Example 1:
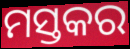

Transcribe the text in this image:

ମସ୍ତକର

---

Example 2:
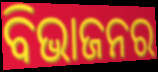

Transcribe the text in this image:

ବିଭାଜନର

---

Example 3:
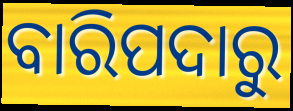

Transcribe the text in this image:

ବାରିପଦାରୁ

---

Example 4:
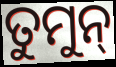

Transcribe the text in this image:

ତୁମୁନ୍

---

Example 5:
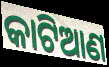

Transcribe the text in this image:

କାଟିଆଣ